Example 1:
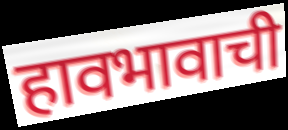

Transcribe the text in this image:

हावभावाची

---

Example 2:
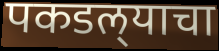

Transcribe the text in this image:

पकडल्याचा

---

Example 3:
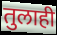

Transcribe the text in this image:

तुलाही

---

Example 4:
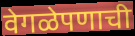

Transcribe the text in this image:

वेगळेपणाची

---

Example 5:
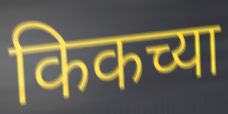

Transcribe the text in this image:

किकच्या